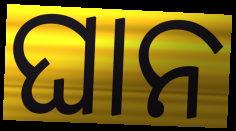
ଘାନ